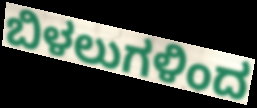
ಬಿಳಲುಗಳಿಂದ